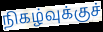
நிகழ்வுக்குச்